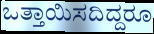
ಒತ್ತಾಯಿಸದಿದ್ದರೂ